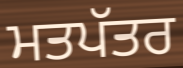
ਮਤਪੱਤਰ